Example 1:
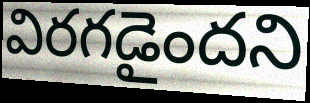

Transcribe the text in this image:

విరగడైందని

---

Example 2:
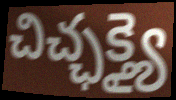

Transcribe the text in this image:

చిచ్ఛక్త్యై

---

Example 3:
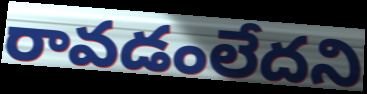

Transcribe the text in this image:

రావడంలేదని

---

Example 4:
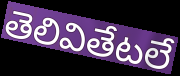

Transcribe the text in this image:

తెలివితేటలే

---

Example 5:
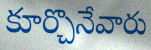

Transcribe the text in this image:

కూర్చొనేవారు